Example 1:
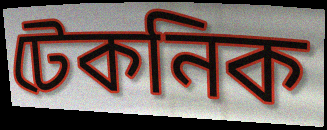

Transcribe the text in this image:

টেকনিক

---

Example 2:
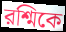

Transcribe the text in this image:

রশ্মিকে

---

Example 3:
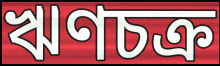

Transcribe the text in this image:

ঋণচক্র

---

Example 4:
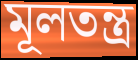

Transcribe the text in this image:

মূলতন্ত্র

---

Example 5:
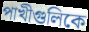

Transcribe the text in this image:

পাখীগুলিকে